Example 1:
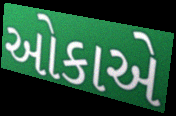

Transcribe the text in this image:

ઓકાએ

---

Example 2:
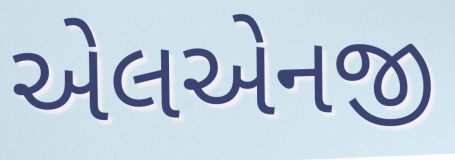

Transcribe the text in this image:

એલએનજી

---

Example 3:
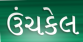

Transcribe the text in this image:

ઉંચકેલ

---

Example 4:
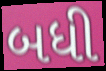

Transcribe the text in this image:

બધી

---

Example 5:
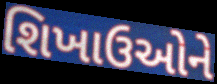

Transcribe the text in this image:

શિખાઉઓને